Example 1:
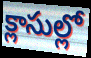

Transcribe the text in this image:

క్లాసుల్లో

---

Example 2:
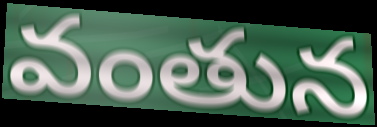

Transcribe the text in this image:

వంతున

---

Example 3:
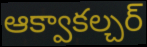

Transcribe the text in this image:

ఆక్వాకల్చర్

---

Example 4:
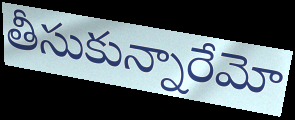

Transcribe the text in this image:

తీసుకున్నారేమో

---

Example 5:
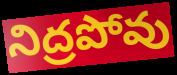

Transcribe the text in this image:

నిద్రపోవు